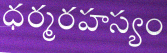
ధర్మరహస్యం